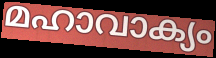
മഹാവാക്യം